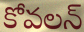
కోవలన్